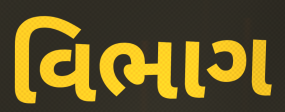
વિભાગ